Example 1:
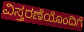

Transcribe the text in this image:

ವಿಸ್ತರಣೆಯೊಂದಿಗೆ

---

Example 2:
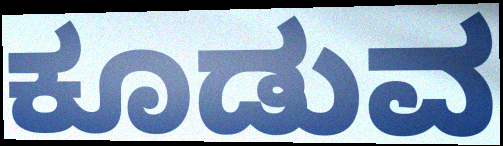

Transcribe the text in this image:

ಕೂಡುವ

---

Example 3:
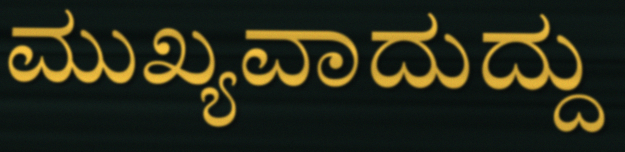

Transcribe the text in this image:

ಮುಖ್ಯವಾದುದ್ದು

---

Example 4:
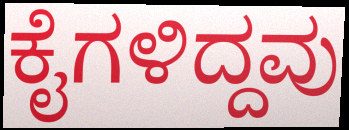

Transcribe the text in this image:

ಕೈಗಳಿದ್ದವು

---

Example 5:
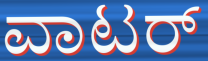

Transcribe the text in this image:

ವಾಟರ್